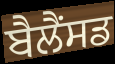
ਬੈਲੈਂਸਡ